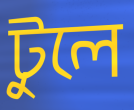
টুলে